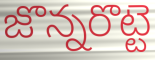
జొన్నరొట్టె